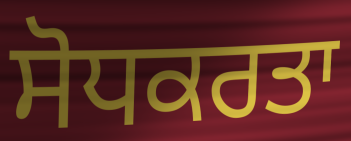
ਸੋਧਕਰਤਾ